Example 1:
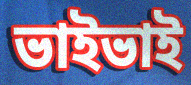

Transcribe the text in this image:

ভাইভাই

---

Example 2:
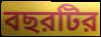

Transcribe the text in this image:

বছরটির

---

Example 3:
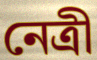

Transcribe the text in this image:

নেত্রী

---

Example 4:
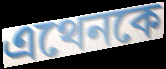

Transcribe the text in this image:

এথেনকে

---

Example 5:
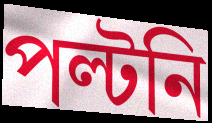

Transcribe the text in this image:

পল্টনি